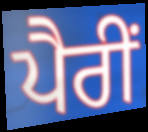
ਪੈਰੀਂ